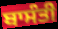
ਬਾਸੰਤੀ